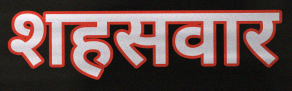
शहसवार